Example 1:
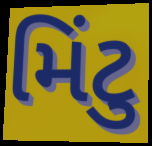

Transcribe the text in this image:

મિંટુ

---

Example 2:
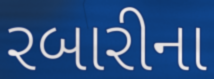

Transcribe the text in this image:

રબારીના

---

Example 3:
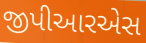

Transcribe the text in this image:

જીપીઆરએસ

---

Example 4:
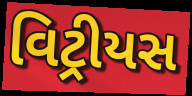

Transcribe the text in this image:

વિટ્રીયસ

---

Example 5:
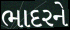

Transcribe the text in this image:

ભાદરને